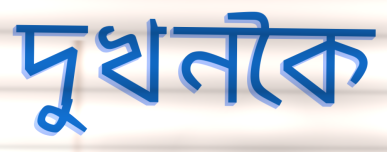
দুখনকৈ